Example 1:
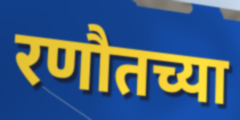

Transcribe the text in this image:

रणौतच्या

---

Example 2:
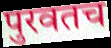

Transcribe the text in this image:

पुरवतच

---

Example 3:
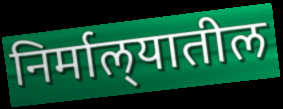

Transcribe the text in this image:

निर्माल्यातील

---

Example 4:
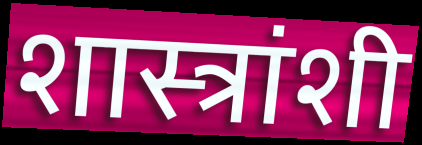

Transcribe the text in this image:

शास्त्रांशी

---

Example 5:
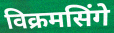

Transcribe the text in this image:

विक्रमसिंगे